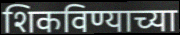
शिकविण्याच्या